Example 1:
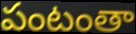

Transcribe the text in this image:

పంటంతా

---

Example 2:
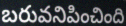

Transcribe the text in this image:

బరువనిపించింది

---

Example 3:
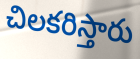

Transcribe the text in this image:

చిలకరిస్తారు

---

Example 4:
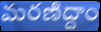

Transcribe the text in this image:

మరణిద్దాం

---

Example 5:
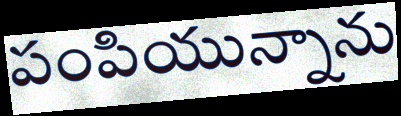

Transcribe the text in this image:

పంపియున్నాను